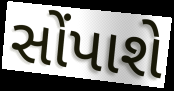
સોંપાશે